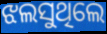
ଝଲସୁଥିଲେ